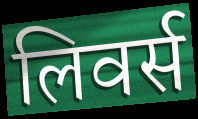
लिवर्स